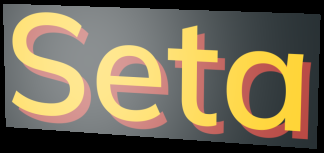
Seta